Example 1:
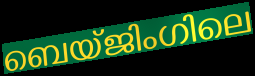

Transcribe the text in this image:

ബെയ്ജിംഗിലെ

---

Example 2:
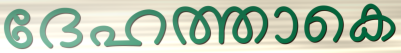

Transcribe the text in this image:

ദേഹത്താകെ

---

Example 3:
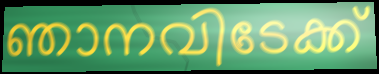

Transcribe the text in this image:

ഞാനവിടേക്ക്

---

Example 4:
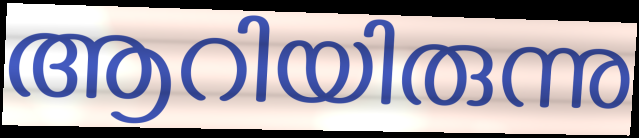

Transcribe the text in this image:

ആറിയിരുന്നു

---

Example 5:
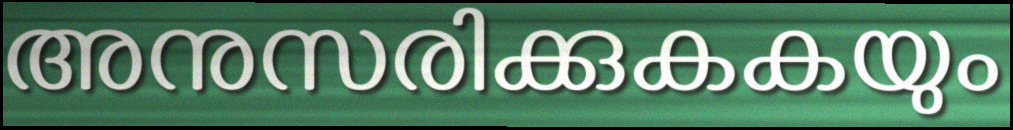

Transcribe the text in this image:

അനുസരിക്കുകകയും